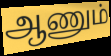
ஆணும்